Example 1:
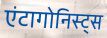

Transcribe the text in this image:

एंटागोनिस्ट्स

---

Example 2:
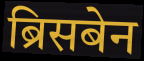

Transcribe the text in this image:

ब्रिसबेन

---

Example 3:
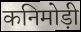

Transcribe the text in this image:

कनिमोड़ी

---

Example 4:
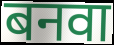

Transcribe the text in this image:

बनवा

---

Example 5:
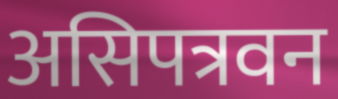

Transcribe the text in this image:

असिपत्रवन